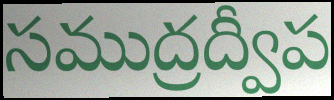
సముద్రద్వీప